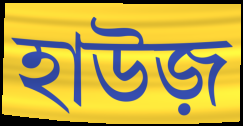
হাউজ়